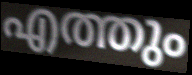
എത്തും